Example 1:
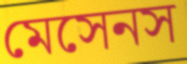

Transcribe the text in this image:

মেসেনস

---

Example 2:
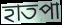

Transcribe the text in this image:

হাতপা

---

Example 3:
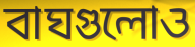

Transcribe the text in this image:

বাঘগুলোও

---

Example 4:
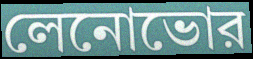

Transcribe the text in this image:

লেনোভোর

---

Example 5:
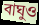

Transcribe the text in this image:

বাঘুও